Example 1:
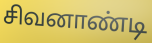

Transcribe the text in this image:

சிவனாண்டி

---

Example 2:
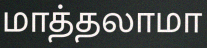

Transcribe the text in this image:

மாத்தலாமா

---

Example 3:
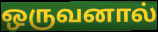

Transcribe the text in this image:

ஒருவனால்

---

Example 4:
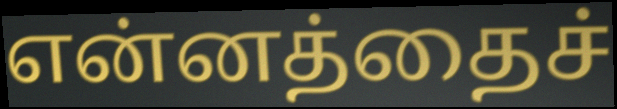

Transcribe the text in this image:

என்னத்தைச்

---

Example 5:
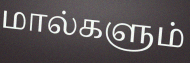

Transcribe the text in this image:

மால்களும்